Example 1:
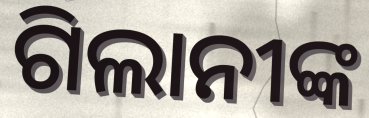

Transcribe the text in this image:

ଗିଲାନୀଙ୍କ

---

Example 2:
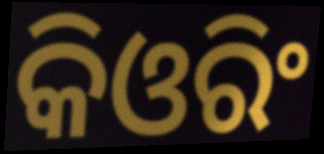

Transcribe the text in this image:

କିଓରିଂ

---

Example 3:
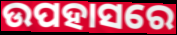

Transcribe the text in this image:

ଉପହାସରେ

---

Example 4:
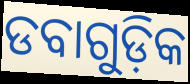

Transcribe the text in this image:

ଡବାଗୁଡ଼ିକ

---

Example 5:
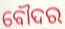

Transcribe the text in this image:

ବୌଦର